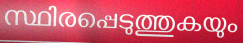
സ്ഥിരപ്പെടുത്തുകയും